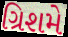
ગ્રિશમે